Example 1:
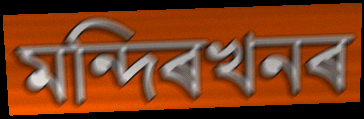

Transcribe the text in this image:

মন্দিৰখনৰ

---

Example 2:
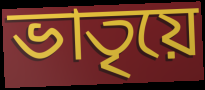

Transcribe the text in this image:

ভাতৃয়ে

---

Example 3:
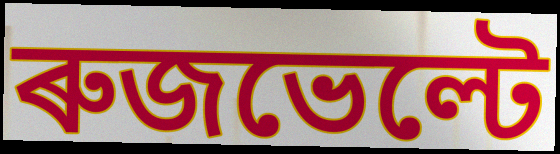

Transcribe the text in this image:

ৰুজভেল্টে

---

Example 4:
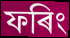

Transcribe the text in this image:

ফৰিং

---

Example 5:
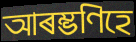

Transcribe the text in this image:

আৰম্ভণিহে